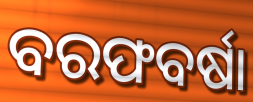
ବରଫବର୍ଷା